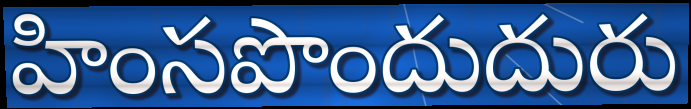
హింసపొందుదురు